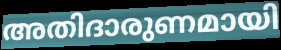
അതിദാരുണമായി